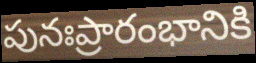
పునఃప్రారంభానికి